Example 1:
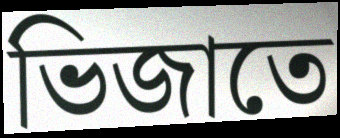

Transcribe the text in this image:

ভিজাতে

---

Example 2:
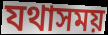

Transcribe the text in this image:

যথাসময়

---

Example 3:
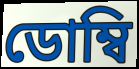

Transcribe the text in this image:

ডোম্বি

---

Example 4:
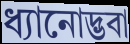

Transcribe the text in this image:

ধ্যানোদ্ভবা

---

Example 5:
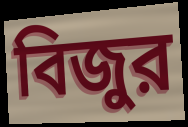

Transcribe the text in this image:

বিজুর